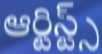
ఆర్టిస్ట్స్